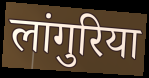
लांगुरिया